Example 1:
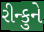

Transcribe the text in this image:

રીન્કુને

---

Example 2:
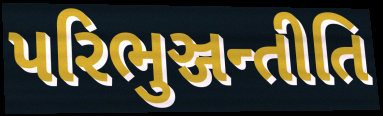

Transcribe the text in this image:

પરિભુઞ્જન્તીતિ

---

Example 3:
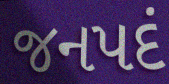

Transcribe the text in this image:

જનપદં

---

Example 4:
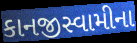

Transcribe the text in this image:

કાનજીસ્વામીના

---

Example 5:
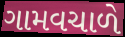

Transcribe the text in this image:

ગામવચાળે